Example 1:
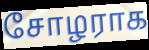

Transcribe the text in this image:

சோழராக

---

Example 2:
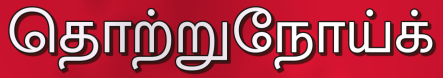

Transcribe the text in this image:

தொற்றுநோய்க்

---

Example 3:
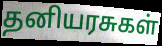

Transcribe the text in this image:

தனியரசுகள்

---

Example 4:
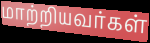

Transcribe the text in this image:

மாற்றியவர்கள்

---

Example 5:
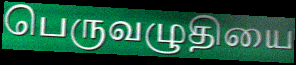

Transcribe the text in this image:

பெருவழுதியை